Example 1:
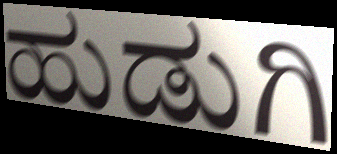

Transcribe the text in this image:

ಹುಡುಗಿ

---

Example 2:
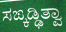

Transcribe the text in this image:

ಸಙ್ಕಡ್ಢಿತ್ವಾ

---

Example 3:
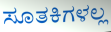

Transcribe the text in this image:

ಸೂತಕಿಗಳಲ್ಲ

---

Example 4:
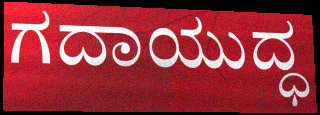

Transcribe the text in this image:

ಗದಾಯುದ್ಧ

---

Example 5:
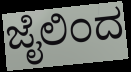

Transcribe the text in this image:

ಜೈಲಿಂದ